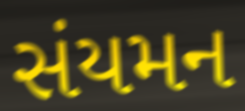
સંયમન